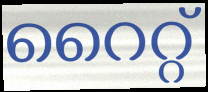
റൈറ്റ്